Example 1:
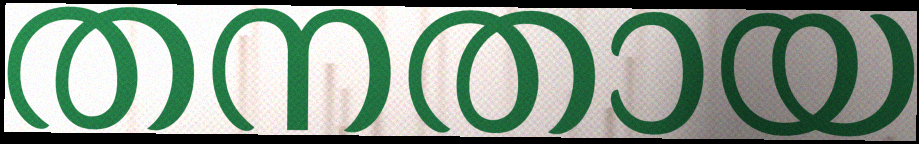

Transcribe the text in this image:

തനതായ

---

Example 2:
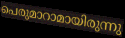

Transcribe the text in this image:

പെരുമാറാമായിരുന്നു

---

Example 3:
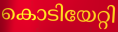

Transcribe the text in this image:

കൊടിയേറ്റി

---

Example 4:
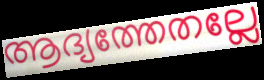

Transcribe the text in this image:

ആദ്യത്തേതല്ലേ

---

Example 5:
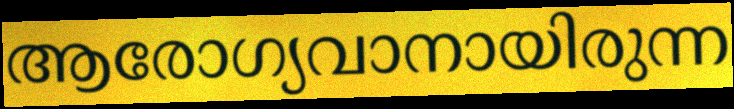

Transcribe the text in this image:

ആരോഗ്യവാനായിരുന്ന